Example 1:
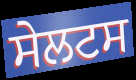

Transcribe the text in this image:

ਸੇਲਟਸ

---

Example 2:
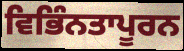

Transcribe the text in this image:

ਵਿਭਿੰਨਤਾਪੂਰਨ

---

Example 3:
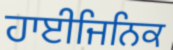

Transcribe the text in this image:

ਹਾਈਜਿਨਿਕ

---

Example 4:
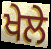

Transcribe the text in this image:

ਖੇਲੇ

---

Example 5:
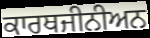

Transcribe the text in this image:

ਕਾਰਥਜੀਨੀਅਨ